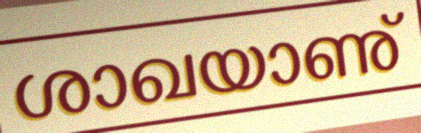
ശാഖയാണു്